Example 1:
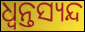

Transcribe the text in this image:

ଧ୍ଵନ୍ତସ୍ୟନ୍ଦ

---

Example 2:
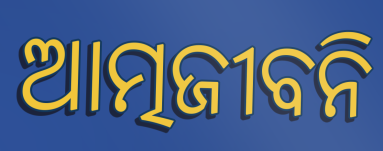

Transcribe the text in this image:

ଆତ୍ମଜୀବନି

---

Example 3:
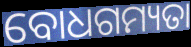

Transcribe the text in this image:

ବୋଧଗମ୍ୟତା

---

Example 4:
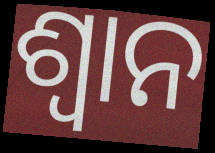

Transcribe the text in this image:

ଶ୍ଵାନ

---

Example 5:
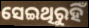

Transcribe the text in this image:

ସେଇଥିରୁହିଁ